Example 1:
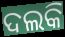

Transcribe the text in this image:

ଦଲକି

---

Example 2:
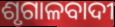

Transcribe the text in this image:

ଶୃଗାଳବାଦୀ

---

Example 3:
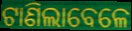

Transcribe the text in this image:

ଟାଣିଲାବେଳେ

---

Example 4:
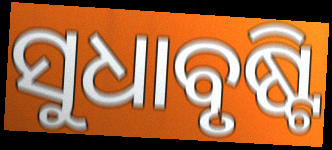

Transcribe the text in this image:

ସୁଧାବୃଷ୍ଟି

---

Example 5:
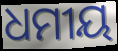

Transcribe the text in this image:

ଧମୀୟ